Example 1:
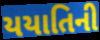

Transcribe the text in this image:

યયાતિની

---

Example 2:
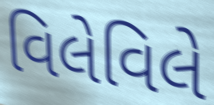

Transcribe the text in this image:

વિલેવિલે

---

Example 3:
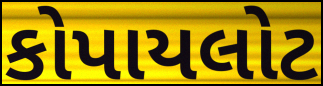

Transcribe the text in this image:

કોપાયલોટ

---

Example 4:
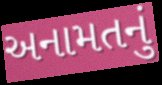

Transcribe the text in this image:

અનામતનું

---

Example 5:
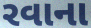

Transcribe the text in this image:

રવાના